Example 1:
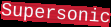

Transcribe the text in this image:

Supersonic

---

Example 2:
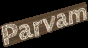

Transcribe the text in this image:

Parvam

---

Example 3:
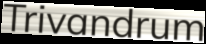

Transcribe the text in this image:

Trivandrum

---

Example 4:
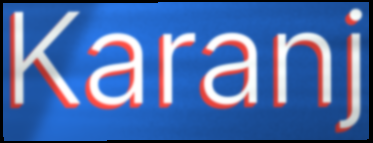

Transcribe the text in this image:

Karanj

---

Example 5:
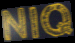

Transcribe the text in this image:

NIQ